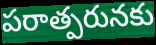
పరాత్పరునకు